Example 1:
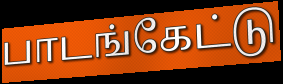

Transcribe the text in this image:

பாடங்கேட்டு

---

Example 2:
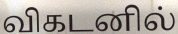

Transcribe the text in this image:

விகடனில்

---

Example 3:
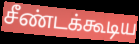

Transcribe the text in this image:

சீண்டக்கூடிய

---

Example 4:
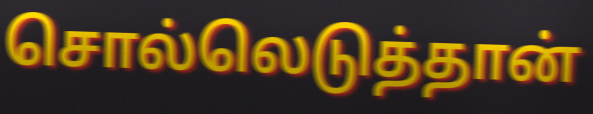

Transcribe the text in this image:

சொல்லெடுத்தான்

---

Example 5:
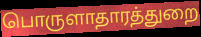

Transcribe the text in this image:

பொருளாதாரத்துறை